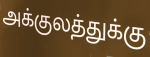
அக்குலத்துக்கு